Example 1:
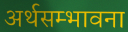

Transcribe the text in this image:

अर्थसम्भावना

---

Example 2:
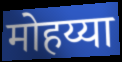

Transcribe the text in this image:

मोहय्या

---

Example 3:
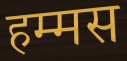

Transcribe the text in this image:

हम्मस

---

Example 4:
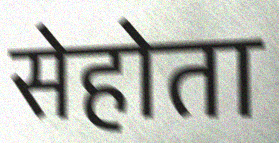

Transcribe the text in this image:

सेहोता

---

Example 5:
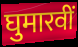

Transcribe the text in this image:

घुमारवीं